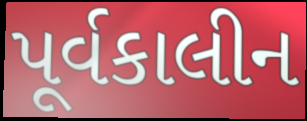
પૂર્વકાલીન